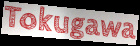
Tokugawa